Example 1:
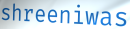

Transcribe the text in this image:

shreeniwas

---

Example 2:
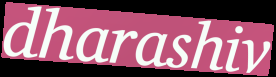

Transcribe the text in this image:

dharashiv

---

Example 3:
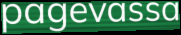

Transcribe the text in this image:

pagevassa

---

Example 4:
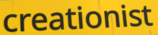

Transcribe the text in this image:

creationist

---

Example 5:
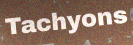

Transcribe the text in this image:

Tachyons